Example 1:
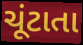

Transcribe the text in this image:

ચૂંટાતા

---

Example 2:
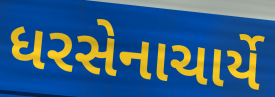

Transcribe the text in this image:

ધરસેનાચાર્યે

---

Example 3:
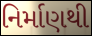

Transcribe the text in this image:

નિર્માણથી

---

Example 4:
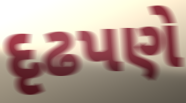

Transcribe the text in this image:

દૃઢપણે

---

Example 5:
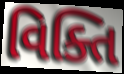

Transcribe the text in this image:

વિક્તિ